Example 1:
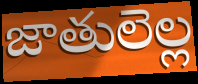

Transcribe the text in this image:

జాతులెల్ల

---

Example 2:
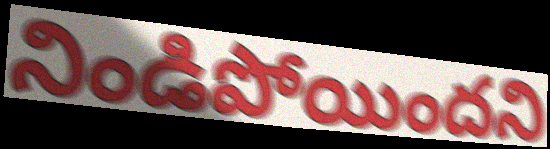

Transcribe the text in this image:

నిండిపోయిందని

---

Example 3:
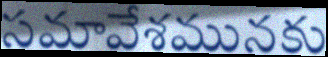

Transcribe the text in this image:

సమావేశమునకు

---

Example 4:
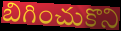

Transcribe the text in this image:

బిగించుకొని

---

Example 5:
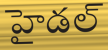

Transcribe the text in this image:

హైడల్